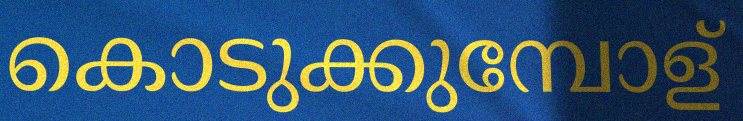
കൊടുക്കുമ്പോള്